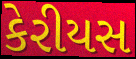
કેરીયસ